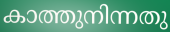
കാത്തുനിന്നതു